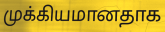
முக்கியமானதாக